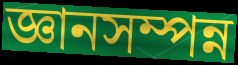
জ্ঞানসম্পন্ন